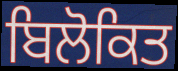
ਬਿਲੋਕਿਤ